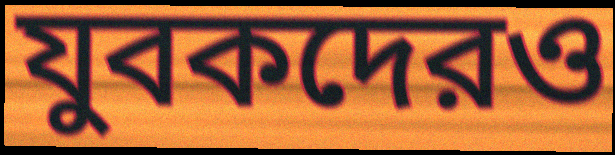
যুবকদেরও